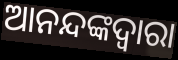
ଆନନ୍ଦଙ୍କଦ୍ୱାରା